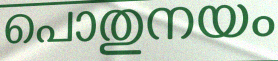
പൊതുനയം